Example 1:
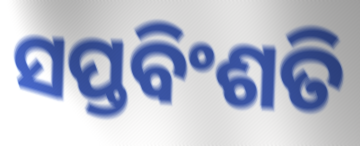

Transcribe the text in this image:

ସପ୍ତବିଂଶତି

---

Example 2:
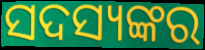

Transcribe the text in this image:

ସଦସ୍ୟଙ୍କର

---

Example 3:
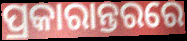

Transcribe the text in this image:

ପ୍ରକାରାନ୍ତରରେ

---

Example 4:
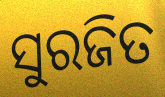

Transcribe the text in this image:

ସୁରଜିତ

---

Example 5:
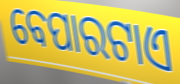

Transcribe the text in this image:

ବେପାରଟାଏ